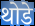
थोडे